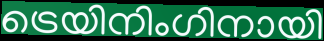
ട്രെയിനിംഗിനായി